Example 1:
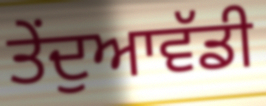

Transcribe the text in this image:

ਤੇਂਦੁਆਵੱਡੀ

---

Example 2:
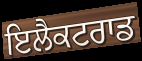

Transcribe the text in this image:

ਇਲੈਕਟਰਾਡ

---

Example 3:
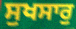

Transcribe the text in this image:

ਸੁਖਸਾਰੁ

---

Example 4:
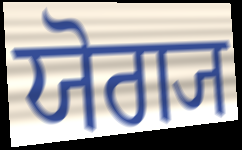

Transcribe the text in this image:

ਯੋਗ੍ਯ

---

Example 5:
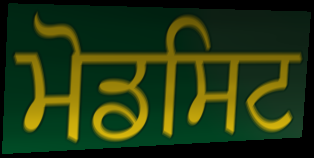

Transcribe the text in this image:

ਮੋਡਸਿਟ